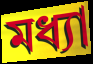
মধ্যা